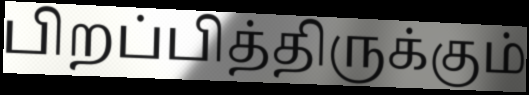
பிறப்பித்திருக்கும்